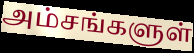
அம்சங்களுள்